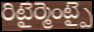
రిటైర్మెంట్పై